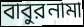
বাবুরনামা